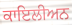
ਕਾਇਲੀਅਨ